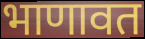
भाणावत